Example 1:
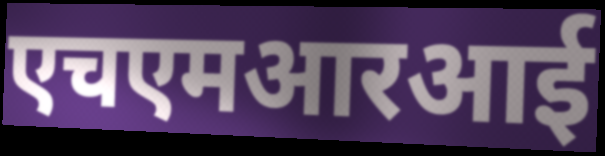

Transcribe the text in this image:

एचएमआरआई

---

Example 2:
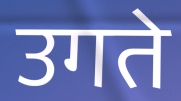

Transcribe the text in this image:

उगते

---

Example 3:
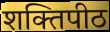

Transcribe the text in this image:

शक्तिपीठ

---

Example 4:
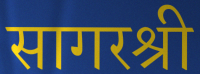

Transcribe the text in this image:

सागरश्री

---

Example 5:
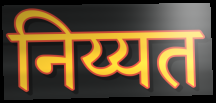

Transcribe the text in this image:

निय्यत